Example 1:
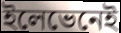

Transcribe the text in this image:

ইলেভেনেই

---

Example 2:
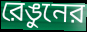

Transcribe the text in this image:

রেঙুনের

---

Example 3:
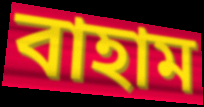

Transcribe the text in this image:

বাহাম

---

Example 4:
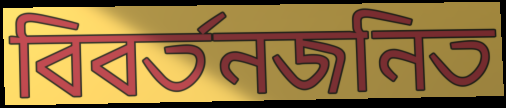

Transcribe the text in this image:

বিবর্তনজনিত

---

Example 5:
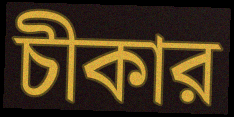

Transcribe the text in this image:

চীকার